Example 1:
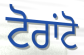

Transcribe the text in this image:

ਟੋਰਾਂਟੋ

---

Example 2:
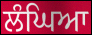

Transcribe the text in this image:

ਲੰਘਿਆ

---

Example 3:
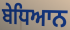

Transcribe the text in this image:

ਬੇਧਿਆਨ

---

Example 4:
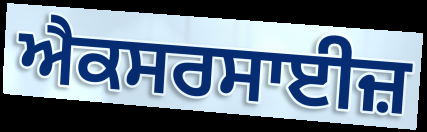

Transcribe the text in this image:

ਐਕਸਰਸਾਈਜ਼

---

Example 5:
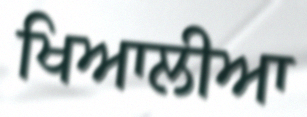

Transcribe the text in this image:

ਖਿਆਲੀਆ